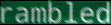
rambled